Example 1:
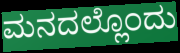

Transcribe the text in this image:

ಮನದಲ್ಲೊಂದು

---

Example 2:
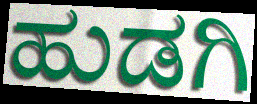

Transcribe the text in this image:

ಹುಡಗಿ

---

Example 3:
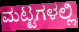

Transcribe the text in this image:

ಮಟ್ಟಗಳಲ್ಲಿ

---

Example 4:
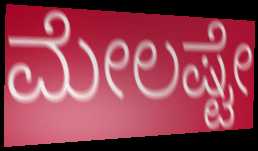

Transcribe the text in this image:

ಮೇಲಷ್ಟೇ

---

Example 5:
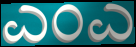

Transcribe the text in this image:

ಎಂಎ